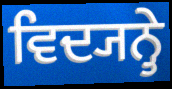
ਵਿਦ੍ਯਨ੍ਤੇ